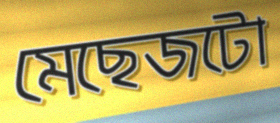
মেছেজটো